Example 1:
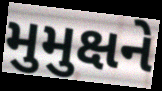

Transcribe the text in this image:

મુમુક્ષને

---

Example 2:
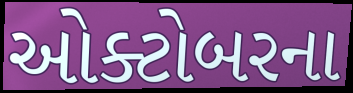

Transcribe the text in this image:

ઓક્ટોબરના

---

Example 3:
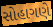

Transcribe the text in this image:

સોહાગણે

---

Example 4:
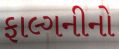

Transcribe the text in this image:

ફાલ્ગનીનો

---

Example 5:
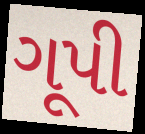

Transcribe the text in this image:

ગૂપી